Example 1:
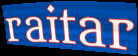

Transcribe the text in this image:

raitar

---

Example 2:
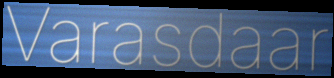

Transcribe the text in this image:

Varasdaar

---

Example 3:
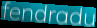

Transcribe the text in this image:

fendradu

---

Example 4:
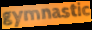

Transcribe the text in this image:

gymnastic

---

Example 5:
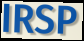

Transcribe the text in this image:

IRSP